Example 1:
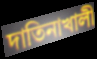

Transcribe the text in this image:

দাতিনাখালী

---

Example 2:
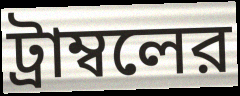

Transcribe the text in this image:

ট্রাম্বলের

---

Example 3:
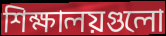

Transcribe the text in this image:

শিক্ষালয়গুলো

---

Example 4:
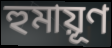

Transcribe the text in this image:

হুমায়ূণ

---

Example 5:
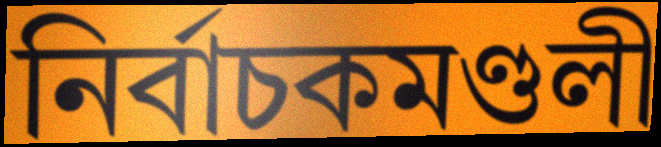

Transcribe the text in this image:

নির্বাচকমণ্ডলী